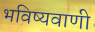
भविष्यवाणी